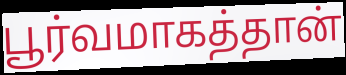
பூர்வமாகத்தான்